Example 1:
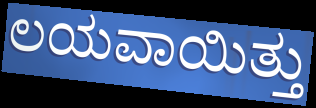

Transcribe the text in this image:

ಲಯವಾಯಿತ್ತು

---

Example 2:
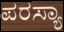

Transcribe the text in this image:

ಪರಸ್ಯಾ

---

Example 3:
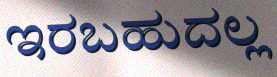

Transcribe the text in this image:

ಇರಬಹುದಲ್ಲ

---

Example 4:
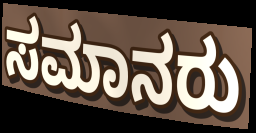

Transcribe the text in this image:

ಸಮಾನರು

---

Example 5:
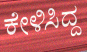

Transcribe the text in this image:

ಕೇಳಿಸಿದ್ದ